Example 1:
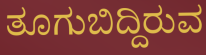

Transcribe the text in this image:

ತೂಗುಬಿದ್ದಿರುವ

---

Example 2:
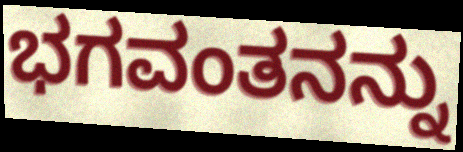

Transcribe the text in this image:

ಭಗವಂತನನ್ನು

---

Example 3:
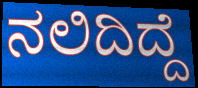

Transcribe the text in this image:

ನಲಿದಿದ್ದೆ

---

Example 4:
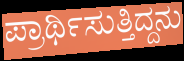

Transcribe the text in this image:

ಪ್ರಾರ್ಥಿಸುತ್ತಿದ್ದನು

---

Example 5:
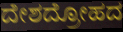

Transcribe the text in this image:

ದೇಶದ್ರೋಹದ